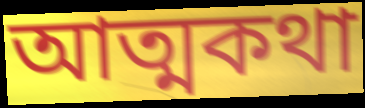
আত্মকথা